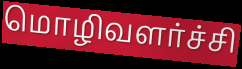
மொழிவளர்ச்சி